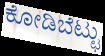
ಕೋಡಿಬೆಟ್ಟು